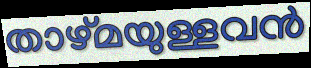
താഴ്മയുള്ളവൻ